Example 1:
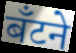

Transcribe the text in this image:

बँटने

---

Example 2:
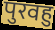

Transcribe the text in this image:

पुरवहु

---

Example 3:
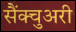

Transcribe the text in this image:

सैंक्चुअरी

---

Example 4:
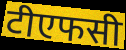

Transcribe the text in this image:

टीएफसी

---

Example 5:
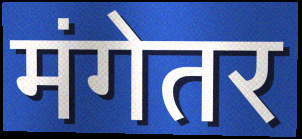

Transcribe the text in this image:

मंगेतर